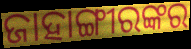
ଜାହାଙ୍ଗୀରଙ୍କର